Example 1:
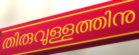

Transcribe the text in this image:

തിരുവുള്ളത്തിനു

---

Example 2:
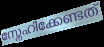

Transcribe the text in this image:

സ്നേഹിക്കേണ്ടത്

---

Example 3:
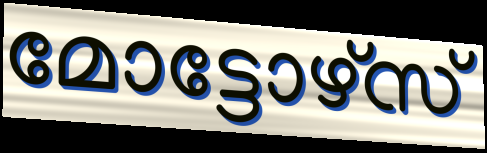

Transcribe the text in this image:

മോട്ടോഴ്സ്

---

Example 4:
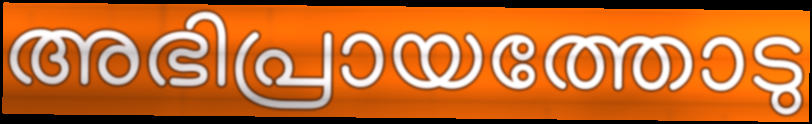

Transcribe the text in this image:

അഭിപ്രായത്തോടു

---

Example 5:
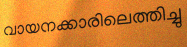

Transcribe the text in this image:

വായനക്കാരിലെത്തിച്ചു